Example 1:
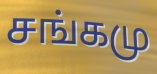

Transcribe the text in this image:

சங்கமு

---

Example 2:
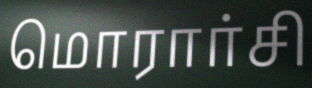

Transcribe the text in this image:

மொரார்சி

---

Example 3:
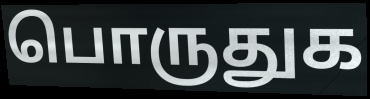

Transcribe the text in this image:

பொருதுக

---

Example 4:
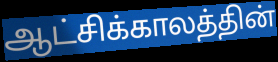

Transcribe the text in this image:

ஆட்சிக்காலத்தின்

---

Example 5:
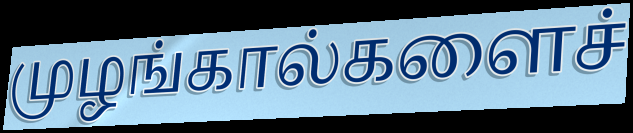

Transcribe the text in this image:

முழங்கால்களைச்